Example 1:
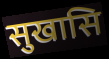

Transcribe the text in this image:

सुखासि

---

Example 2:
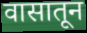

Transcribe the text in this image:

वासातून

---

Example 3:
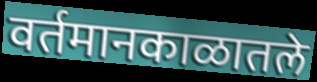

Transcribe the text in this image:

वर्तमानकाळातले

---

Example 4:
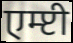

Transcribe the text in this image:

एम्प्टी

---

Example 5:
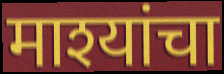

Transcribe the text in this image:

माश्यांचा